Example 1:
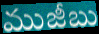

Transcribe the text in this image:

ముజీబు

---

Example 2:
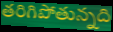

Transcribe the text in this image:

తరిగిపోతున్నది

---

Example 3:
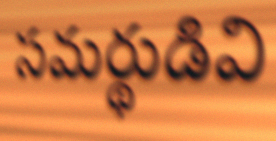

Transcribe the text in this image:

సమర్థుడివి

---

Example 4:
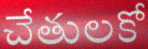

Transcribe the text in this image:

చేతులకో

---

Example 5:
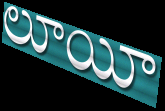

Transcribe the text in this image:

లూయీ